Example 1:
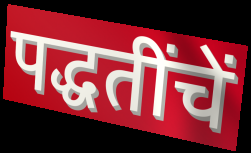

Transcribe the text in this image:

पद्धतींचें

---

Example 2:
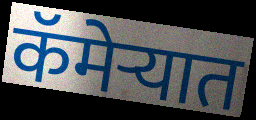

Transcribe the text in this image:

कॅमेर्‍यात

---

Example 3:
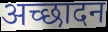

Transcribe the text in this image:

अच्छादन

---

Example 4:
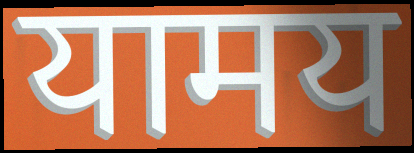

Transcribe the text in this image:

यामय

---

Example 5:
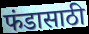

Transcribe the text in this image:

फंडासाठी